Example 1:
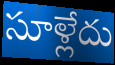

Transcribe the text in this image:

సూళ్లేదు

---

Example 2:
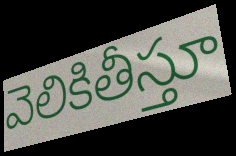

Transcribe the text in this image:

వెలికితీస్తూ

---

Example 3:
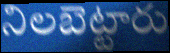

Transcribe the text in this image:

నిలబెట్టారు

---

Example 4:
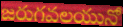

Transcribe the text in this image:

జరుగవలయునో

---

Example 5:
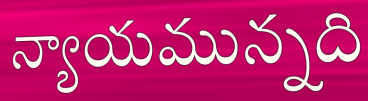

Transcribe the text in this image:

న్యాయమున్నది